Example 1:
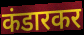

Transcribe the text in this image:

कंडारकर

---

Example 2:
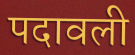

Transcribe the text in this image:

पदावली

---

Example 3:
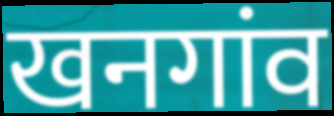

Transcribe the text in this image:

खनगांव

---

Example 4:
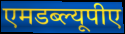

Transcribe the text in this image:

एमडब्ल्यूपीए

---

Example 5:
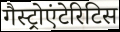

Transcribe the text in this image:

गैस्ट्रोएंटेरिटिस